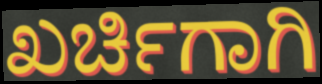
ಖರ್ಚಿಗಾಗಿ